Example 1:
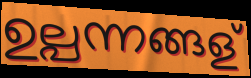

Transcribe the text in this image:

ഉല്പന്നങ്ങള്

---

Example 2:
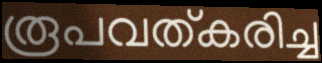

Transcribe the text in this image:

രൂപവത്കരിച്ച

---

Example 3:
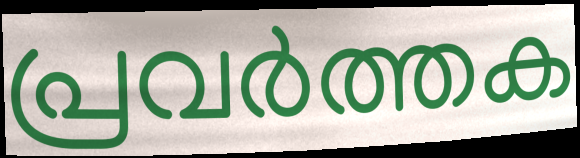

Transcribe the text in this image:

പ്രവർത്തക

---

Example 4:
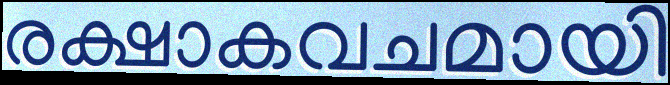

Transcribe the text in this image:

രക്ഷാകവചമായി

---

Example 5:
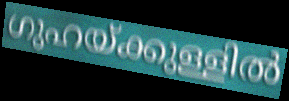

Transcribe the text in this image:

ഗുഹയ്ക്കുള്ളിൽ